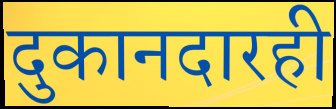
दुकानदारही